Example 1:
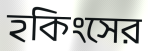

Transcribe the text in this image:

হকিংসের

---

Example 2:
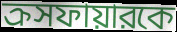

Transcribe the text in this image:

ক্রসফায়ারকে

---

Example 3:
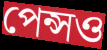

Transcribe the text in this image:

পেন্সও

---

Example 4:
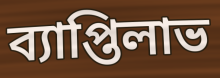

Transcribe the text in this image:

ব্যাপ্তিলাভ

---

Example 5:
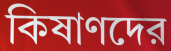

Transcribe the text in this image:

কিষাণদের